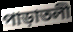
পাড়াতলী